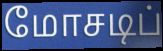
மோசடிப்